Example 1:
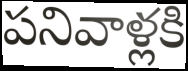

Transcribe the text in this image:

పనివాళ్లకి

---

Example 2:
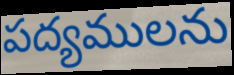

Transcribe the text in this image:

పద్యములను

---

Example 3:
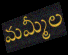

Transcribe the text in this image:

మమ్మీల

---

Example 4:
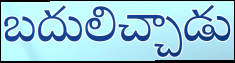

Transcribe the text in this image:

బదులిచ్చాడు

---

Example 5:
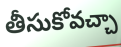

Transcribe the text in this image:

తీసుకోవచ్చా